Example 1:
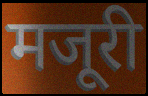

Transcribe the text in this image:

मजूरी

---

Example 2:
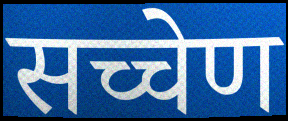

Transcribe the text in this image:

सच्चेण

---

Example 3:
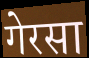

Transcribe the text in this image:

गेरसा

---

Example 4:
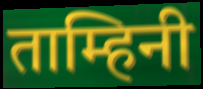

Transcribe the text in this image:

ताम्हिनी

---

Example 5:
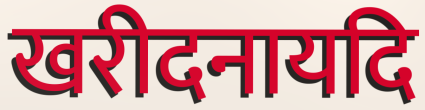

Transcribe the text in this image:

खरीदनायदि